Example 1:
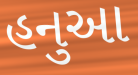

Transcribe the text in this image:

હનુઆ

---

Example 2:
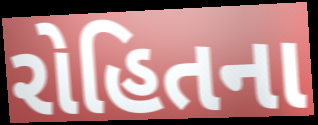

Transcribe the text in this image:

રોહિતના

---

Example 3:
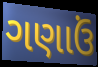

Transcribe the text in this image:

ગણાઉં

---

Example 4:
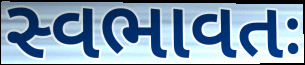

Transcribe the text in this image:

સ્વભાવતઃ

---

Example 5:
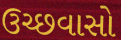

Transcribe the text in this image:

ઉચ્છવાસો